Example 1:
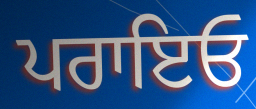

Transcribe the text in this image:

ਪਰਾਇਓ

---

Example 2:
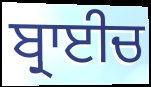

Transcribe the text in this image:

ਬ੍ਰਾਈਚ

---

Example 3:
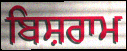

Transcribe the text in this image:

ਬਿਸ਼ਰਾਮ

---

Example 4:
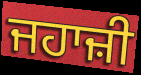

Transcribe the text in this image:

ਜਹਾਜ਼ੀ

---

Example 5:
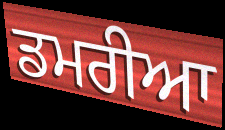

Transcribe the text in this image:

ਡਮਰੀਆ